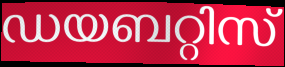
ഡയബറ്റിസ്